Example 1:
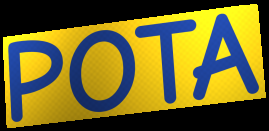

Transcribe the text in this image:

POTA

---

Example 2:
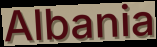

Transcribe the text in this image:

Albania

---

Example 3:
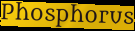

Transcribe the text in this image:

Phosphorus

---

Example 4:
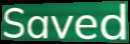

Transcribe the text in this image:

Saved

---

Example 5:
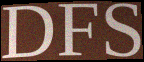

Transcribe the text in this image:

DFS